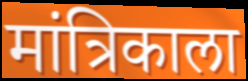
मांत्रिकाला